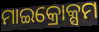
ମାଇକ୍ରୋକ୍ସମ